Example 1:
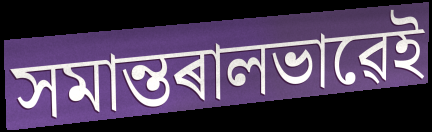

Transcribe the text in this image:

সমান্তৰালভাৱেই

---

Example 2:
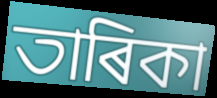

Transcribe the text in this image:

তাৰিকা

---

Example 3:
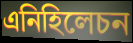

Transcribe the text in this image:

এনিহিলেচন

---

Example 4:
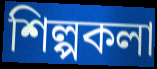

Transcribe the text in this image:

শিল্পকলা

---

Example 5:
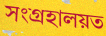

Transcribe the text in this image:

সংগ্ৰহালয়ত